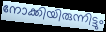
നോക്കിയിരുന്നിട്ടും